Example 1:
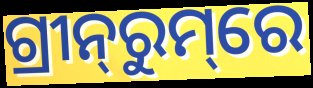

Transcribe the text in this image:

ଗ୍ରୀନ୍‌ରୁମ୍‌ରେ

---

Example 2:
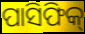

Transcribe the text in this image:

ପାସିଫିକ୍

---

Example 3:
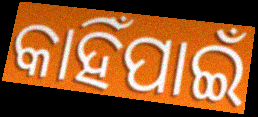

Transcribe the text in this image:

କାହିଁପାଇଁ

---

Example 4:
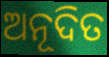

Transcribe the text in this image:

ଅନୂଦିତ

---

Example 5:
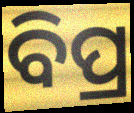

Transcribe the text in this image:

ବିପ୍ର